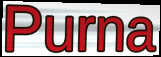
Purna